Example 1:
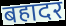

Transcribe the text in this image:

बहादर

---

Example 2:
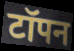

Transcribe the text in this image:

टॉपन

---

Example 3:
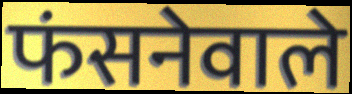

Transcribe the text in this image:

फंसनेवाले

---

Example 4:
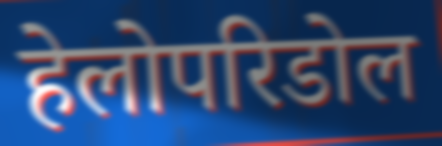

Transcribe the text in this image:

हेलोपरिडोल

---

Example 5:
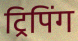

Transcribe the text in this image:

ट्रिपिंग